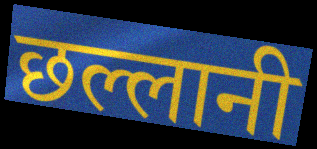
छल्लानी